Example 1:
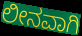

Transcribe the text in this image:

ಲೀನವಾಗಿ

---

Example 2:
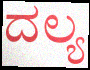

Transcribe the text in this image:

ದಲ್ಯ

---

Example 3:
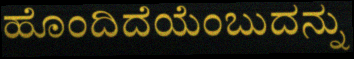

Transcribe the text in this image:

ಹೊಂದಿದೆಯೆಂಬುದನ್ನು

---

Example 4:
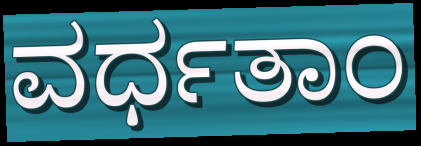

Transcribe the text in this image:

ವರ್ಧತಾಂ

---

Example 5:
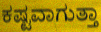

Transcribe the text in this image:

ಕಷ್ಟವಾಗುತ್ತಾ